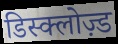
डिस्क्लोज़्ड